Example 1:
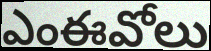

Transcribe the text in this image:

ఎంఈవోలు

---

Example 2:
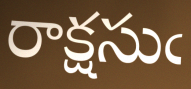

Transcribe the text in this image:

రాక్షసుఁ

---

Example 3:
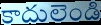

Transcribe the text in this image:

కాదులెండి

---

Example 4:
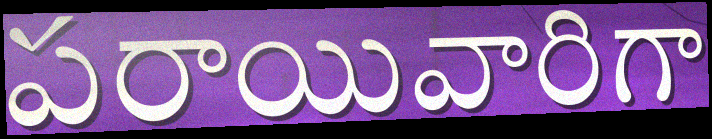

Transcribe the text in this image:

పరాయివారిగా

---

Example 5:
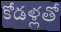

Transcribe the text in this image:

కోడళ్లతో